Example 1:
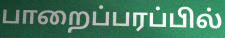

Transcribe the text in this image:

பாறைப்பரப்பில்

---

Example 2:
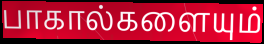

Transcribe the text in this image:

பாகால்களையும்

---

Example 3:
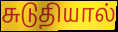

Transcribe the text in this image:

சுடுதியால்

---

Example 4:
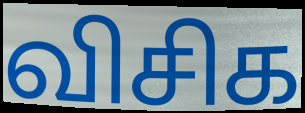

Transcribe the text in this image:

விசிக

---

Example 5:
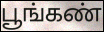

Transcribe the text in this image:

பூங்கண்